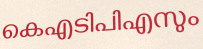
കെഎടിപിഎസും